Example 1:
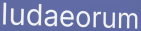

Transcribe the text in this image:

Iudaeorum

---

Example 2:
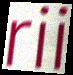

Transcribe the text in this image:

rii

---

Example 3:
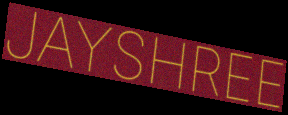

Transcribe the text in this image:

JAYSHREE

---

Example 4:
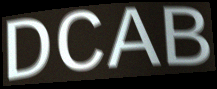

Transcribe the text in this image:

DCAB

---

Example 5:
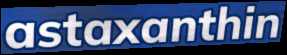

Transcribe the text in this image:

astaxanthin